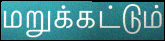
மறுக்கட்டும்